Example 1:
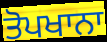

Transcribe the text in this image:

ਤੋਪਖਾਨਾ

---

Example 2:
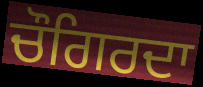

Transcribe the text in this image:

ਚੌਗਿਰਦਾ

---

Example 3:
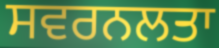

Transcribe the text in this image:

ਸਵਰਨਲਤਾ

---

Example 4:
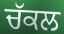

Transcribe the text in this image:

ਚੱਕਲ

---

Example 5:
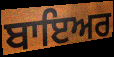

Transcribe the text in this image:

ਬਾਇਅਰ